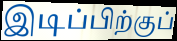
இடிப்பிற்குப்